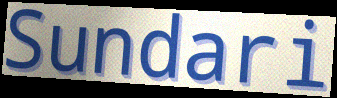
Sundari